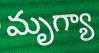
మృగ్యా